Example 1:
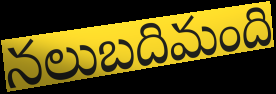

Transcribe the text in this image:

నలుబదిమంది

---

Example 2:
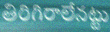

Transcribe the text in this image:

తిరిగిరాలేనట్టు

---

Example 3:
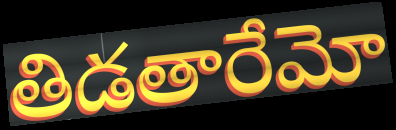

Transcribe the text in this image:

తిడతారేమో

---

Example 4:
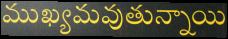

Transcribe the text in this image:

ముఖ్యమవుతున్నాయి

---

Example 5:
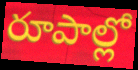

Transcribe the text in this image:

రూపాల్లో